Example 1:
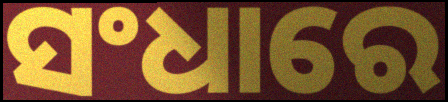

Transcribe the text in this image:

ସଂଧାରେ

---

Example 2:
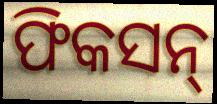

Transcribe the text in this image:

ଫିକସନ୍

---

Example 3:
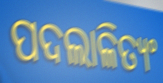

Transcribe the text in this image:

ପଦଲାଳିତ୍ୟଂ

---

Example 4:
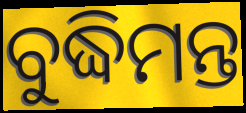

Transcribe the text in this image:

ବୁଦ୍ଧିମନ୍ତ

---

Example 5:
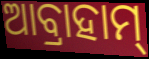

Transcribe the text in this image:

ଆବ୍ରାହାମ୍